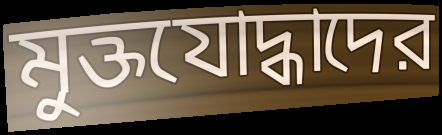
মুক্তযোদ্ধাদের